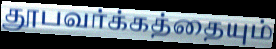
தூபவர்க்கத்தையும்